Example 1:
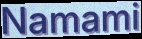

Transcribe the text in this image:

Namami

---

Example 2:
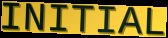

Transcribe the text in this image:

INITIAL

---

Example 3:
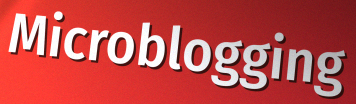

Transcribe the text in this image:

Microblogging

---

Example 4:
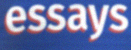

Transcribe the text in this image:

essays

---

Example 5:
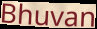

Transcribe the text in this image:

Bhuvan